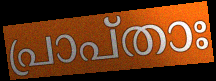
പ്രാപ്താഃ